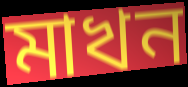
মাখন